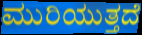
ಮುರಿಯುತ್ತದೆ